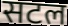
सटल